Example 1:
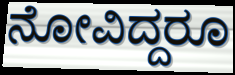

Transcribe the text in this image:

ನೋವಿದ್ದರೂ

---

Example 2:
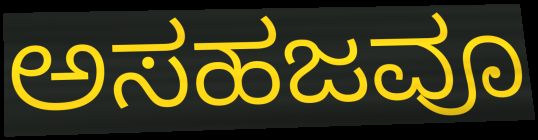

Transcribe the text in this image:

ಅಸಹಜವೂ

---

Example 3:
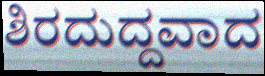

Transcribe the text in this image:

ಶಿರದುದ್ದವಾದ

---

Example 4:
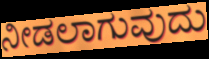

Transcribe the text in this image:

ನೀಡಲಾಗುವುದು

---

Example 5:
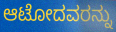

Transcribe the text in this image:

ಆಟೋದವರನ್ನು